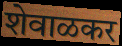
शेवाळकर